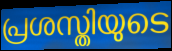
പ്രശസ്തിയുടെ